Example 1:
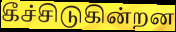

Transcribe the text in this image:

கீச்சிடுகின்றன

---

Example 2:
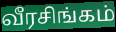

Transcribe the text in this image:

வீரசிங்கம்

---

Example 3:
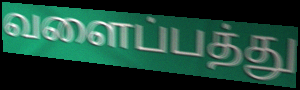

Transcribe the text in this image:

வளைப்பத்து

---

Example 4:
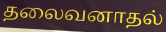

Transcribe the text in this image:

தலைவனாதல்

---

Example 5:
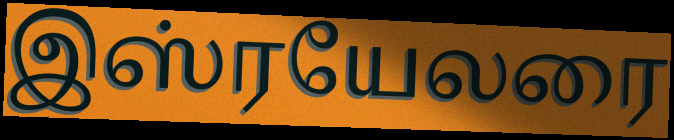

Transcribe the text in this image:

இஸ்ரயேலரை